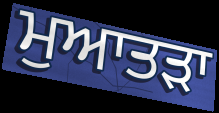
ਮੁਆਤੜਾ